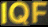
IQF